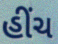
હીંચ